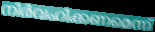
നിർവഹിക്കണമെന്ന്